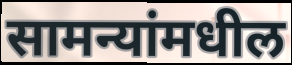
सामन्यांमधील